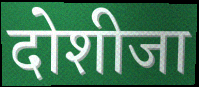
दोशीजा